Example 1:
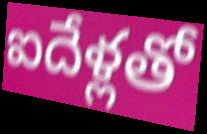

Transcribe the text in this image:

ఐదేళ్లతో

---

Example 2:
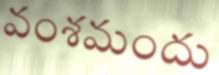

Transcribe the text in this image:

వంశమందు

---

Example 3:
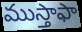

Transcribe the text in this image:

ముస్తాఫా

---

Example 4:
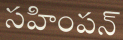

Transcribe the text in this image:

సహింపన్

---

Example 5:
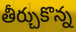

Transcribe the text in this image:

తీర్చుకొన్న